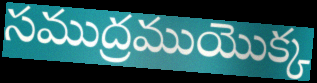
సముద్రముయొక్క